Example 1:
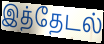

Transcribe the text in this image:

இத்தேடல்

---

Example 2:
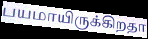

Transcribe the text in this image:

பயமாயிருக்கிறதா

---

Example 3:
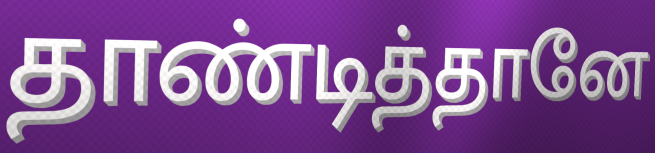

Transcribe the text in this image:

தாண்டித்தானே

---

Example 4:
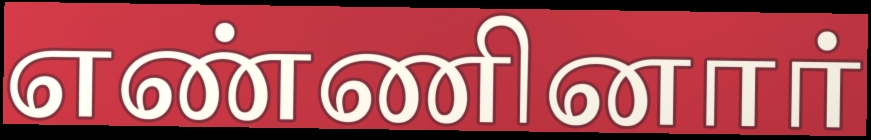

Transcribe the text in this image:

எண்ணினார்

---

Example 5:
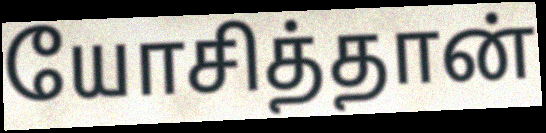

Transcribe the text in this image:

யோசித்தான்